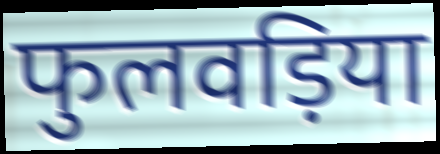
फुलवड़िया